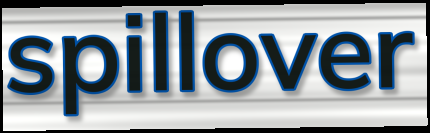
spillover